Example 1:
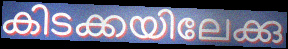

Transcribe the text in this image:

കിടക്കയിലേക്കു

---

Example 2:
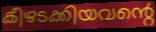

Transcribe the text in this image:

കീഴടക്കിയവന്റെ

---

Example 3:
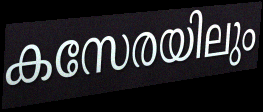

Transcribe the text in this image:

കസേരയിലും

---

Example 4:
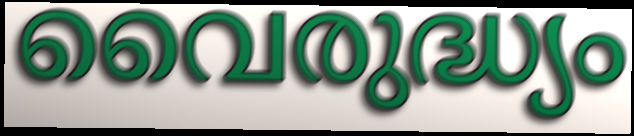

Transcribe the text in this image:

വൈരുദ്ധ്യം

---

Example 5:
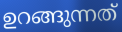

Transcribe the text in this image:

ഉറങ്ങുന്നത്